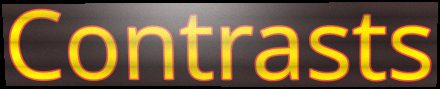
Contrasts